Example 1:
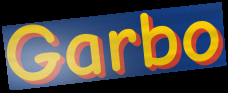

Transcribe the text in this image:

Garbo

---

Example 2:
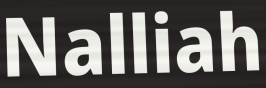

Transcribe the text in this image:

Nalliah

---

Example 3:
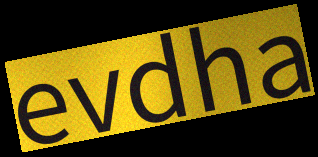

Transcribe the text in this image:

evdha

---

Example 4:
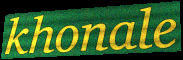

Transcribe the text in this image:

khonale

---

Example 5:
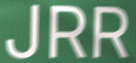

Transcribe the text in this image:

JRR